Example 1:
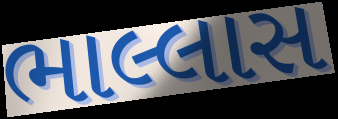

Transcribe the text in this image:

ભાલ્લાસ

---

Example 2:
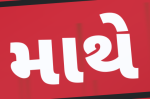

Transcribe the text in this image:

માથે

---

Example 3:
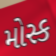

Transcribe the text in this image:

મોસ્ક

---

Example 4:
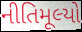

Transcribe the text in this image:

નીતિમૂલ્યો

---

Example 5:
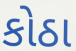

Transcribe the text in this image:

કોઠા